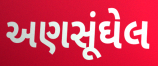
અણસૂંઘેલ